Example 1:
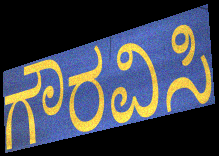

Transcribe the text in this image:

ಗೌರವಿಸಿ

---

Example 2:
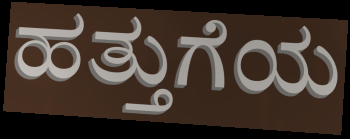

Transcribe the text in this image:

ಹತ್ತುಗೆಯ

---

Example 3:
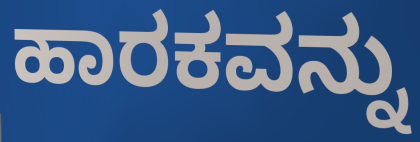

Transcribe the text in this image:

ಹಾರಕವನ್ನು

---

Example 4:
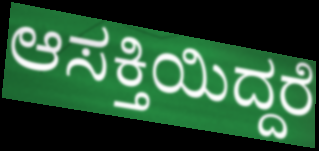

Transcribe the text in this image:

ಆಸಕ್ತಿಯಿದ್ದರೆ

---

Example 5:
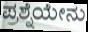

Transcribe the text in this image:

ಪ್ರಶ್ನೆಯೇನು